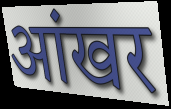
आंखर